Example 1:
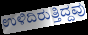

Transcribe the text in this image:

ಉಳಿದಿರುತ್ತಿದ್ದವು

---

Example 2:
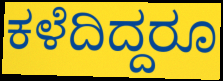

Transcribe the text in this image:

ಕಳೆದಿದ್ದರೂ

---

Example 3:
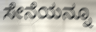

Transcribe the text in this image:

ಸೇನೆಯನ್ನೂ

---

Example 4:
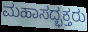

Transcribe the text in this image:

ಮಹಾಸದ್ಭಕ್ತರು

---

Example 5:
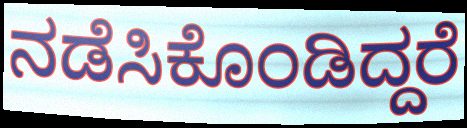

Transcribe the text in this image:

ನಡೆಸಿಕೊಂಡಿದ್ದರೆ